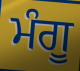
ਮੰਗੂ